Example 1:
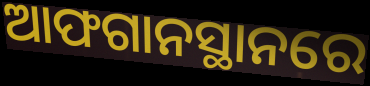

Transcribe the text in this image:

ଆଫଗାନସ୍ଥାନରେ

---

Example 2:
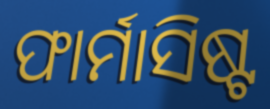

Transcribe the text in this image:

ଫାର୍ମାସିଷ୍ଟ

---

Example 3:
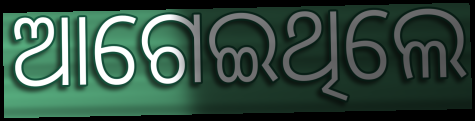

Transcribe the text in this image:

ଆଗେଇଥିଲେ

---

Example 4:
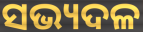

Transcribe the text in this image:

ସଭ୍ୟଦଳ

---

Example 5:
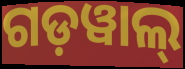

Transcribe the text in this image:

ଗଡ଼ୱାଲ୍